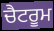
ਚੈਟਰੂਮ